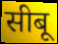
सीबू